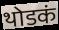
थोडकं